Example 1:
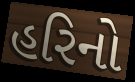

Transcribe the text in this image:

હરિનો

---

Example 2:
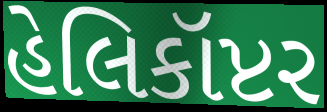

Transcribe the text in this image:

હેલિકૉપ્ટર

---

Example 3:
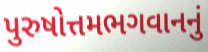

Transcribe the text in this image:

પુરુષોત્તમભગવાનનું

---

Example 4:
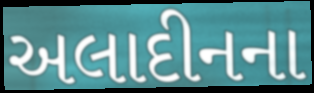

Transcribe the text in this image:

અલાદીનના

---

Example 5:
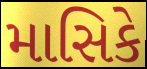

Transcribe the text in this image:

માસિકે